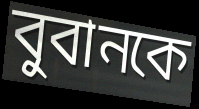
বুবানকে